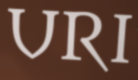
URI